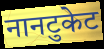
नानटुकेट